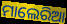
ମାଲେରିଆ